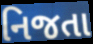
નિજતા